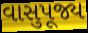
વાસુપૂજ્ય